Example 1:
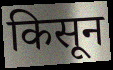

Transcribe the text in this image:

किसून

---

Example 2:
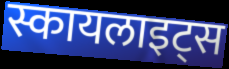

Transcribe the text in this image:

स्कायलाइट्स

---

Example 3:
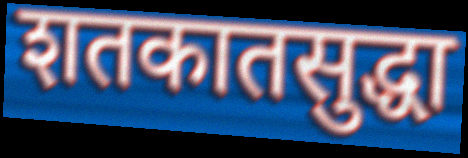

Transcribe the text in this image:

शतकातसुद्धा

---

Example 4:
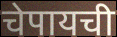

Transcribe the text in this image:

चेपायची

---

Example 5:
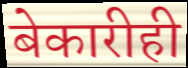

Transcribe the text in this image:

बेकारीही